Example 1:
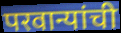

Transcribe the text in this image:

परवान्यांची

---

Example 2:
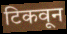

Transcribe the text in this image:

टिकवून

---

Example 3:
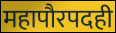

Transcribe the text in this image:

महापौरपदही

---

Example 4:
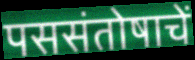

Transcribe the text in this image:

पससंतोषाचें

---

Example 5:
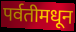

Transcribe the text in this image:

पर्वतीमधून